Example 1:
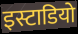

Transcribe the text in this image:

इस्टाडियो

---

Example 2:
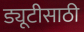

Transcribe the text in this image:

ड्यूटीसाठी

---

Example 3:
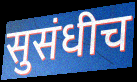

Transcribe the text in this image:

सुसंधीच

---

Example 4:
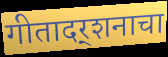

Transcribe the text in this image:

गीतादर्शनाचा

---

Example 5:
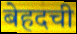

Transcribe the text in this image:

बेहदची